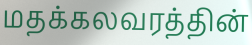
மதக்கலவரத்தின்